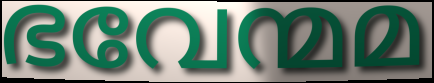
ഭവേന്മമ